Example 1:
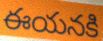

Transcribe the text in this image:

ఈయనకి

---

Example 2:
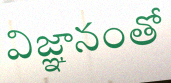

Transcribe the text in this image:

విజ్ఞానంతో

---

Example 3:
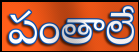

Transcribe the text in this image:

పంతాలే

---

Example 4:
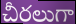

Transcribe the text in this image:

చీరలుగా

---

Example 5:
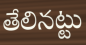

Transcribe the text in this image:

తేలినట్టు